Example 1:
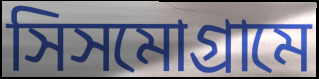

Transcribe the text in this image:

সিসমোগ্রামে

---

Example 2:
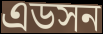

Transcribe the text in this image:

এডসন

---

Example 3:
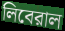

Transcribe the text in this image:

লিবেরাল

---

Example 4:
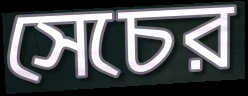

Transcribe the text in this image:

সেচের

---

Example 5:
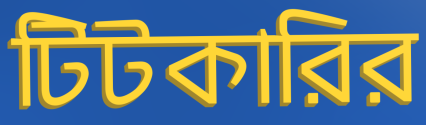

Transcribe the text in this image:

টিটকারির